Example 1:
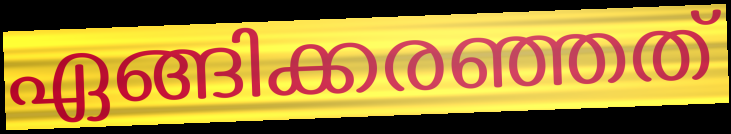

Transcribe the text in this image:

ഏങ്ങിക്കരഞ്ഞത്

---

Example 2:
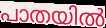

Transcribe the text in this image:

പാതയിൽ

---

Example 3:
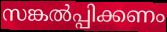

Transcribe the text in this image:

സങ്കൽപ്പിക്കണം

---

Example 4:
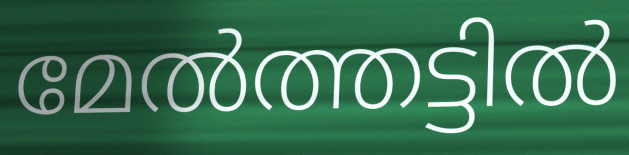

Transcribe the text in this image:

മേൽത്തട്ടിൽ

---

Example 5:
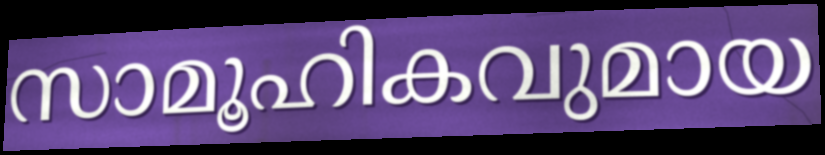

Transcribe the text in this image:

സാമൂഹികവുമായ